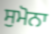
ਸੁਮੋਨਾ